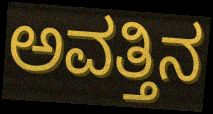
ಅವತ್ತಿನ